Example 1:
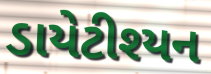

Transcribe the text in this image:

ડાયેટીશ્યન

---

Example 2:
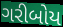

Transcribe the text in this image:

ગરીબોય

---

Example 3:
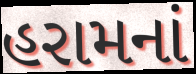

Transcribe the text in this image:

હરામનાં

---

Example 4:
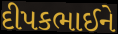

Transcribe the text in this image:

દીપકભાઈને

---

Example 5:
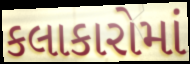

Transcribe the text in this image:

કલાકારોમાં